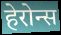
हेरोन्स